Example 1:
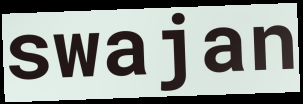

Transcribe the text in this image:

swajan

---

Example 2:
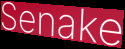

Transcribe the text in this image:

Senake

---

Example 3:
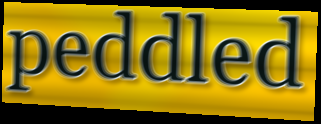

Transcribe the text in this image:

peddled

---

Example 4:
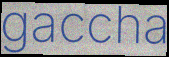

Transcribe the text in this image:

gaccha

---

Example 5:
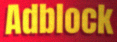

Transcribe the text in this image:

Adblock